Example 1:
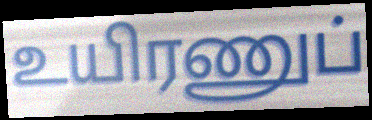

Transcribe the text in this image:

உயிரணுப்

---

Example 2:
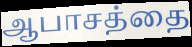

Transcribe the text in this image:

ஆபாசத்தை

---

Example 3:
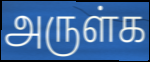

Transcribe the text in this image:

அருள்க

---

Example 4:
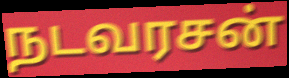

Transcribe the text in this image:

நடவரசன்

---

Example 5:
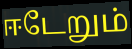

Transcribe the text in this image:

ஈடேறும்